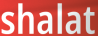
shalat